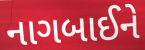
નાગબાઈને